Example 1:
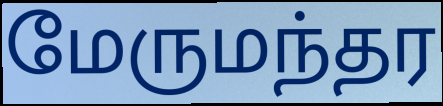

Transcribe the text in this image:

மேருமந்தர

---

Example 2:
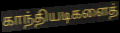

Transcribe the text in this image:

காந்தியடிகளைத்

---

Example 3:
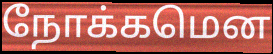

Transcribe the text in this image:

நோக்கமென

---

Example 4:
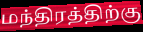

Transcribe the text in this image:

மந்திரத்திற்கு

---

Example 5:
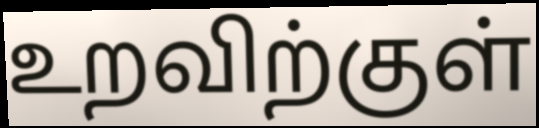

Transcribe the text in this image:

உறவிற்குள்